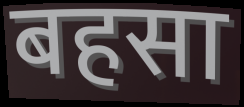
बहसा